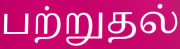
பற்றுதல்